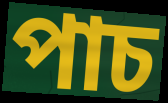
পাচ